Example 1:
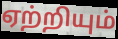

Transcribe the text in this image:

ஏற்றியும்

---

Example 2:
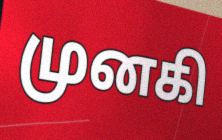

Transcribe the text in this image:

முனகி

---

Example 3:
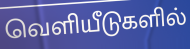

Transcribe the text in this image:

வெளியீடுகளில்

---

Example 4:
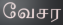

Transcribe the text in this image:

வேசர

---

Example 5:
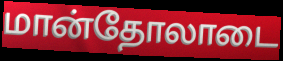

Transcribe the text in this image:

மான்தோலாடை